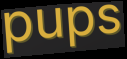
pups